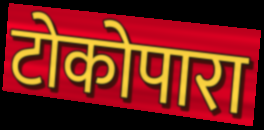
टोकोपारा